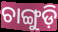
ଚାଙ୍ଗୁଡ଼ି